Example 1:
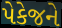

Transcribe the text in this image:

પેકેજને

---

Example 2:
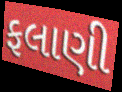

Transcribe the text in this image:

ફલાણી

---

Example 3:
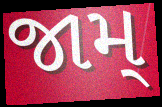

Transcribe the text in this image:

જામ્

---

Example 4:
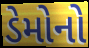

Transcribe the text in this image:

ડેમોનો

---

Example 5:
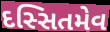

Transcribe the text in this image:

દસ્સિતમેવ